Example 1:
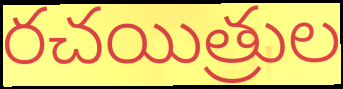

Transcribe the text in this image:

రచయిత్రుల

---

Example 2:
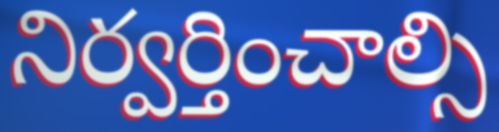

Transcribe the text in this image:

నిర్వర్తించాల్సి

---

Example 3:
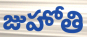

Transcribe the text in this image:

జుహోతి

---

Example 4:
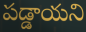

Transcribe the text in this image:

పడ్డాయని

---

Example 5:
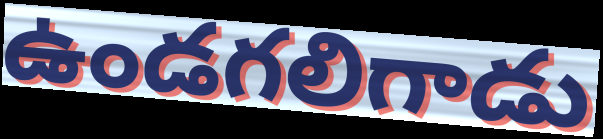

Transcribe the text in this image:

ఉండగలిగాడు